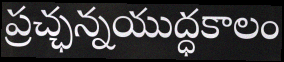
ప్రచ్ఛన్నయుద్ధకాలం